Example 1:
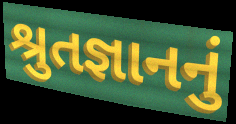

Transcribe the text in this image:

શ્રુતજ્ઞાનનું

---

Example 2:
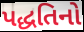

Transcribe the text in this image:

પદ્ધતિનો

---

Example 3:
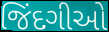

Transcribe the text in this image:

જિંદગીઓ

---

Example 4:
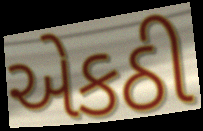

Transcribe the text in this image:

એકઠી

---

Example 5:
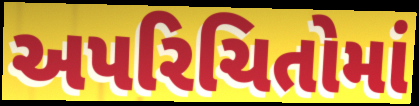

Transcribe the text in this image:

અપરિચિતોમાં